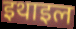
इथाइल